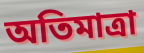
অতিমাত্ৰা